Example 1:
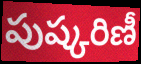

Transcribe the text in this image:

పుష్కరిణీ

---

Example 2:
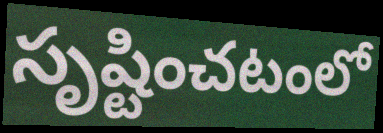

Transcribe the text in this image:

సృష్టించటంలో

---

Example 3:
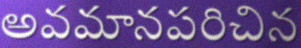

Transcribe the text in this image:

అవమానపరిచిన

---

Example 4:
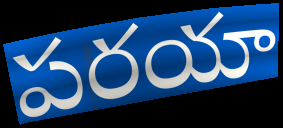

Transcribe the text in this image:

పరయా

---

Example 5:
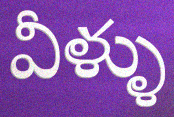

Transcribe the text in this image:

వీళ్ళు